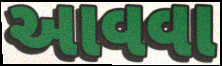
આવવા